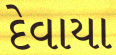
દેવાયા